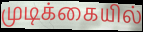
முடிக்கையில்